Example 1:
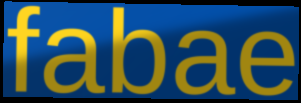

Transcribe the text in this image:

fabae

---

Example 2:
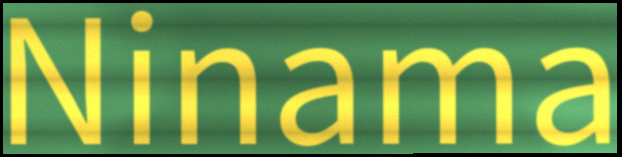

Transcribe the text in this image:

Ninama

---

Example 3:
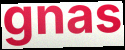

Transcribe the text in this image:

gnas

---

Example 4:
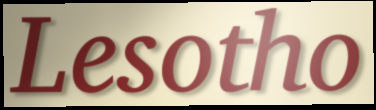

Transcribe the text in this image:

Lesotho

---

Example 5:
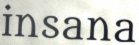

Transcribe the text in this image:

insana